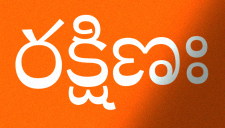
రక్షిణః